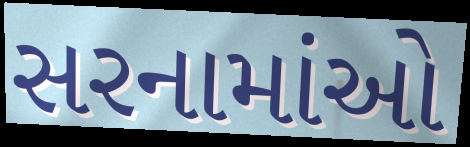
સરનામાંઓ